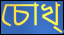
চোখ্